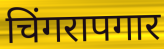
चिंगरापगार